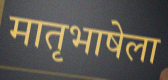
मातृभाषेला